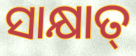
ସାକ୍ଷାତ୍